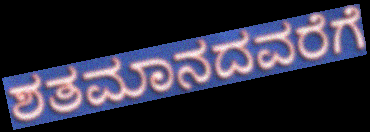
ಶತಮಾನದವರೆಗೆ